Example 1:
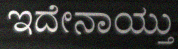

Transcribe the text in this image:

ಇದೇನಾಯ್ತು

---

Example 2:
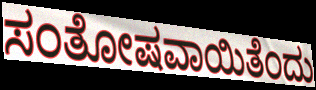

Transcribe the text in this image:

ಸಂತೋಷವಾಯಿತೆಂದು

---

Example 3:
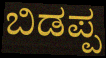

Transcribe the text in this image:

ಬಿಡಪ್ಪ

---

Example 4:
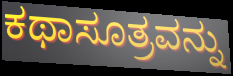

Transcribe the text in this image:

ಕಥಾಸೂತ್ರವನ್ನು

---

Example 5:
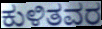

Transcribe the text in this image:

ಕುಳಿತವರ